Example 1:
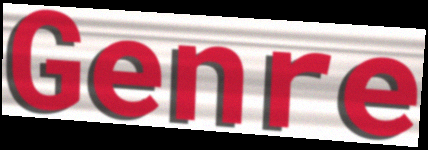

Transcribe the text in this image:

Genre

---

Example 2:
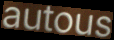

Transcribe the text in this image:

autous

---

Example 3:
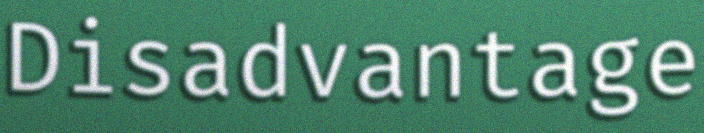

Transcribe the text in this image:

Disadvantage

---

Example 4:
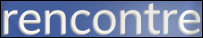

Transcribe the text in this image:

rencontre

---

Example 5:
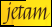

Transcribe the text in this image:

jetam